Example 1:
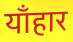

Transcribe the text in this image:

याँहार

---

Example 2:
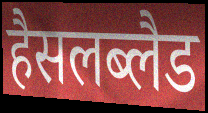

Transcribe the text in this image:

हैसलब्लैड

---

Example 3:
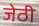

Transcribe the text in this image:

जेठी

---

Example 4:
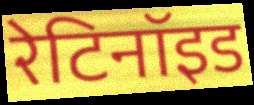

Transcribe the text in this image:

रेटिनॉइड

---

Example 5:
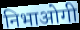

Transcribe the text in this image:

निभाओगी